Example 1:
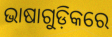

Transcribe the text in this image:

ଭାଷାଗୁଡ଼ିକରେ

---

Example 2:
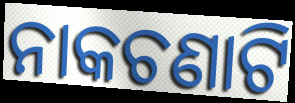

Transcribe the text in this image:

ନାକଚଣାଟି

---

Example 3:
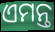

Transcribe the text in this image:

ଏମନ୍ତ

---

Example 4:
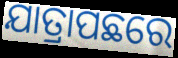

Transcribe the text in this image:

ଯାତ୍ରାପଛରେ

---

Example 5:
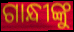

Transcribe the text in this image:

ଗାନ୍ଧୀଙ୍କୁ